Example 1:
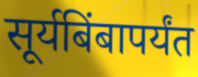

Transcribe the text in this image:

सूर्यबिंबापर्यंत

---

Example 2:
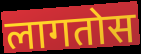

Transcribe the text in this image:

लागतोस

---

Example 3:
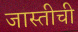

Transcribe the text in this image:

जास्तीची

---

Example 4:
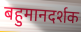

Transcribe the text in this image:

बहुमानदर्शक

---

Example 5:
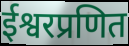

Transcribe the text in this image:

ईश्वरप्रणित